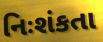
નિઃશંકતા